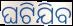
ଘଟିଯିବ